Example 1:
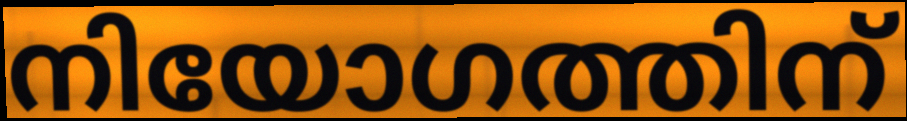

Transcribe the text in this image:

നിയോഗത്തിന്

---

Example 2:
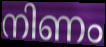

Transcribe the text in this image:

നിണം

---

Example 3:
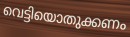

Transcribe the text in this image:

വെട്ടിയൊതുക്കണം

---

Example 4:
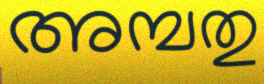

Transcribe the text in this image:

അമ്പതു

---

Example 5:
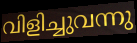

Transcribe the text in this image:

വിളിച്ചുവന്നു